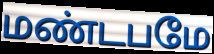
மண்டபமே